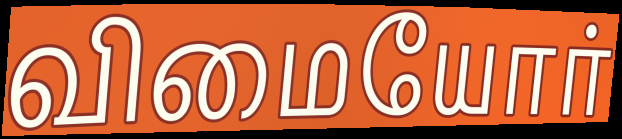
விமையோர்